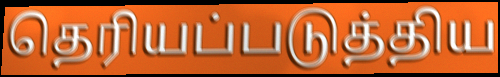
தெரியப்படுத்திய